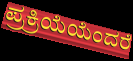
ಪ್ರಕ್ರಿಯೆಯೆಂದರೆ